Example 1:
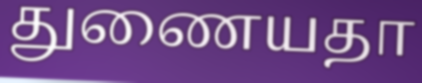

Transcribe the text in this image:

துணையதா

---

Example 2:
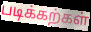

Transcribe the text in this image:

படிக்கற்கள்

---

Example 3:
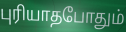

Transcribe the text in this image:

புரியாதபோதும்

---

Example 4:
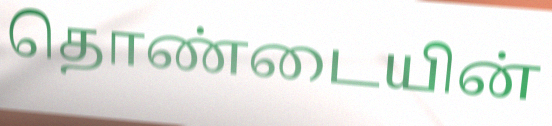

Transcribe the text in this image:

தொண்டையின்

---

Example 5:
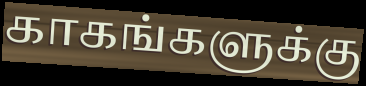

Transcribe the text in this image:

காகங்களுக்கு